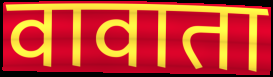
वावाता